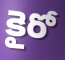
కైరో